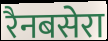
रैनबसेरा